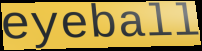
eyeball